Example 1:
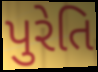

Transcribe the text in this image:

પુરેતિ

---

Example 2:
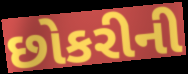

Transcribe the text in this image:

છોકરીની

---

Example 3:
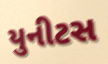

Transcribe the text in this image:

યુનીટસ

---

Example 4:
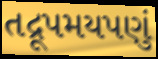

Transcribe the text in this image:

તદ્રૂપમયપણું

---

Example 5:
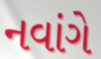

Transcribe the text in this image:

નવાંગે